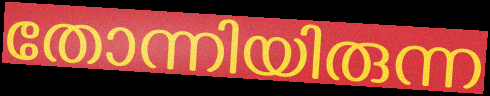
തോന്നിയിരുന്ന